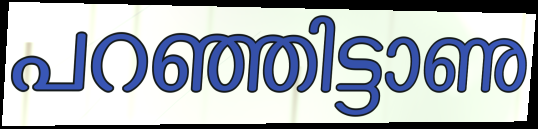
പറഞ്ഞിട്ടാണു